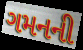
ગમનની